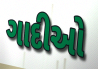
ગાદીઓ